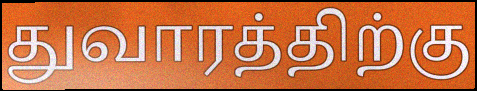
துவாரத்திற்கு